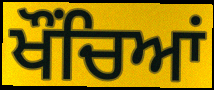
ਖੌਂਚਿਆਂ